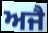
ਅਜੈ